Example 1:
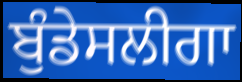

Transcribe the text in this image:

ਬੁੰਡੇਸਲੀਗਾ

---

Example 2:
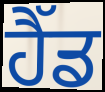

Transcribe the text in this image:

ਹੈੱਡ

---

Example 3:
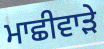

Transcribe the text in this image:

ਮਾਛੀਵਾੜੇ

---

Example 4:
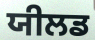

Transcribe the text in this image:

ਯੀਲਡ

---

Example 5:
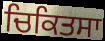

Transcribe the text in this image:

ਚਿਕਿਤਸਾ